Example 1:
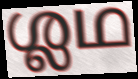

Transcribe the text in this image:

ശ്ലഥ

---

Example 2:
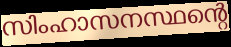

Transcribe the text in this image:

സിംഹാസനസ്ഥന്റെ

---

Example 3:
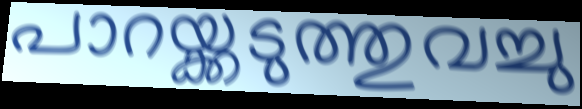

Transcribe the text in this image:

പാറയ്ക്കടുത്തുവച്ചു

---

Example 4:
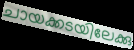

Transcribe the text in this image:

ചായക്കടയിലേക്കു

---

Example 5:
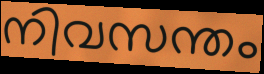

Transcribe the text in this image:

നിവസന്തം